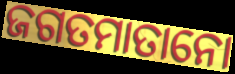
ଜଗତମାତାନୋ